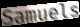
Samuels